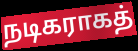
நடிகராகத்